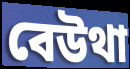
বেউথা